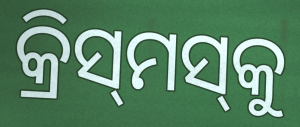
କ୍ରିସ୍‌ମସ୍‌କୁ